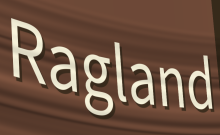
Ragland